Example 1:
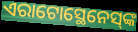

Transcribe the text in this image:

ଏରାଟୋସ୍ଥେନେସ୍‌ଙ୍କ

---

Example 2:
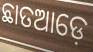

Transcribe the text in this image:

ଛାତଆଡ଼େ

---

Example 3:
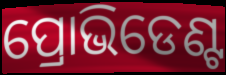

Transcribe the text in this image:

ପ୍ରୋଭିଡେଣ୍ଟ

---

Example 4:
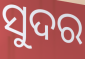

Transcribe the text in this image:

ସୁଦର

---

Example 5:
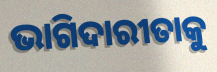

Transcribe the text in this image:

ଭାଗିଦାରୀତାକୁ